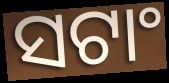
ସଟାଂ